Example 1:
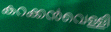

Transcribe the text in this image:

കറക്കൻവെള്ളി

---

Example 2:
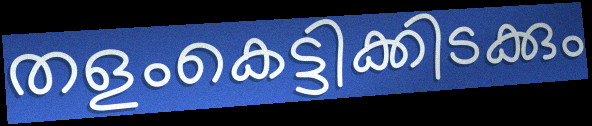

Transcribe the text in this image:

തളംകെട്ടിക്കിടക്കും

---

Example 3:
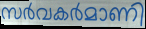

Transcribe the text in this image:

സർവകർമാണി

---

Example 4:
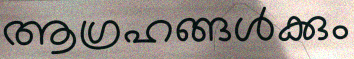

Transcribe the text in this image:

ആഗ്രഹങ്ങൾക്കും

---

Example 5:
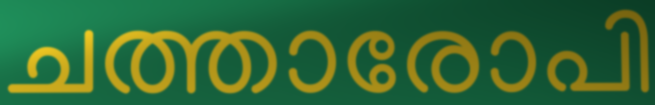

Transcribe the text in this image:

ചത്താരോപി